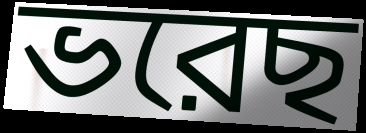
ভরেছ